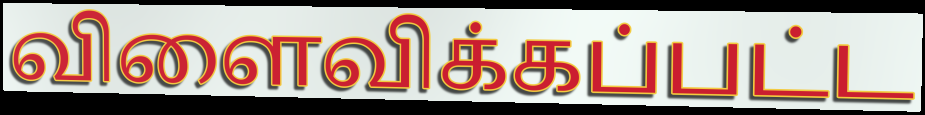
விளைவிக்கப்பட்ட